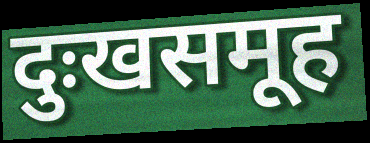
दुःखसमूह